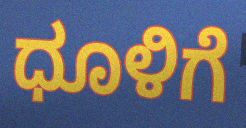
ಧೂಳಿಗೆ